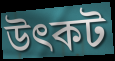
উৎকট